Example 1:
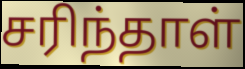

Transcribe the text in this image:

சரிந்தாள்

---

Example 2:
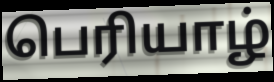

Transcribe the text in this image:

பெரியாழ்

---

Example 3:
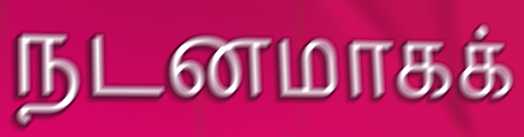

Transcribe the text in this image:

நடனமாகக்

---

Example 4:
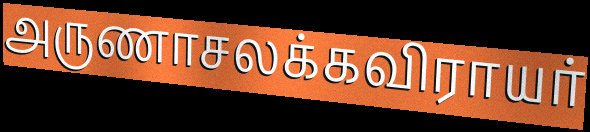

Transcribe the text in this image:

அருணாசலக்கவிராயர்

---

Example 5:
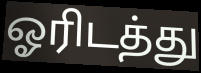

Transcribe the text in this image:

ஓரிடத்து